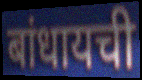
बांधायची